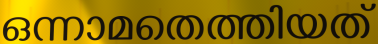
ഒന്നാമതെത്തിയത്